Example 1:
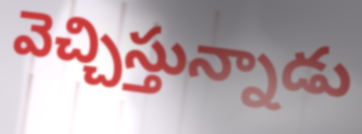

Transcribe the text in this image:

వెచ్చిస్తున్నాడు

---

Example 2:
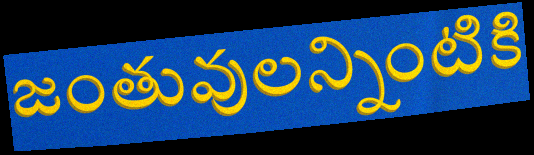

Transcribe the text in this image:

జంతువులన్నింటికి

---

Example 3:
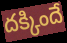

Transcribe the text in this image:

దక్కిందే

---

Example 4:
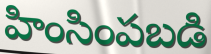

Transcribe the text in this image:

హింసింపబడి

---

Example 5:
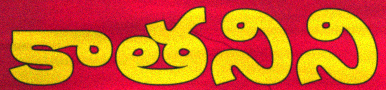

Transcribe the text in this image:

కాతనిని